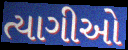
ત્યાગીઓ